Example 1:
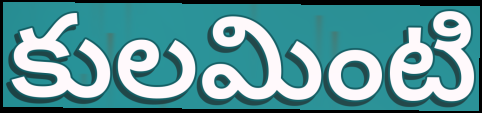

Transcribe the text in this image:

కులమింటి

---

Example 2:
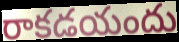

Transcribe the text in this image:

రాకడయందు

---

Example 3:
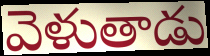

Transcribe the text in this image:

వెళుతాడు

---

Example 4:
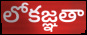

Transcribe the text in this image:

లోకజ్ఞతా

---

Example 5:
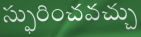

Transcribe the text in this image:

స్ఫురించవచ్చు